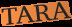
TARA